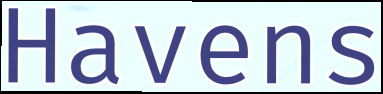
Havens